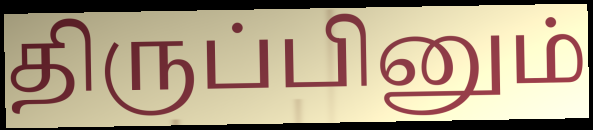
திருப்பினும்